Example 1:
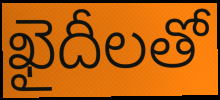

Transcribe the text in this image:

ఖైదీలతో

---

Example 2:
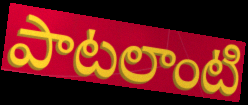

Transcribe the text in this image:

పాటలాంటి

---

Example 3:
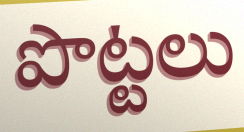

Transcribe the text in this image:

పొట్టలు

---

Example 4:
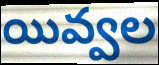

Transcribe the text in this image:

యివ్వల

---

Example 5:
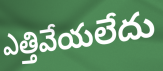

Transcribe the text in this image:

ఎత్తివేయలేదు